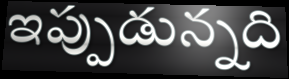
ఇప్పుడున్నది